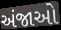
અંજાઓ